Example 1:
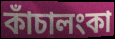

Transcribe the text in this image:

কাঁচালংকা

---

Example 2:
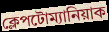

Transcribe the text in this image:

ক্লেপটোম্যানিয়াক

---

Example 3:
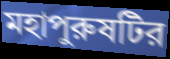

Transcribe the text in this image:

মহাপুরুষটির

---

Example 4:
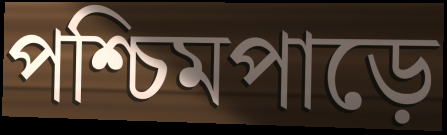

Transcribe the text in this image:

পশ্চিমপাড়ে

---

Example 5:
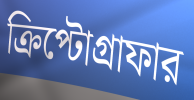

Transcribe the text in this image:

ক্রিপ্টোগ্রাফার